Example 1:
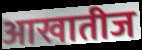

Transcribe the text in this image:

आखातीज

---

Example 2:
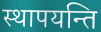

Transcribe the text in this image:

स्थापयन्ति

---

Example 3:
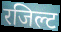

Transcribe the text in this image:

रजिल्ट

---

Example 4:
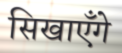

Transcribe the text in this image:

सिखाएँगे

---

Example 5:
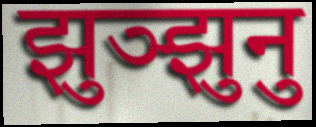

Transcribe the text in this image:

झुञ्झुनु